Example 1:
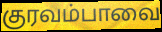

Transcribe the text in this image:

குரவம்பாவை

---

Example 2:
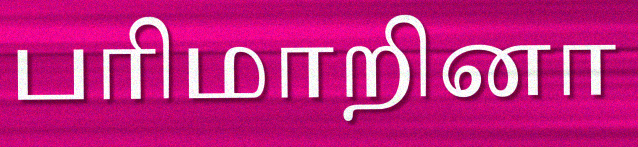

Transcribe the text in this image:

பரிமாறினா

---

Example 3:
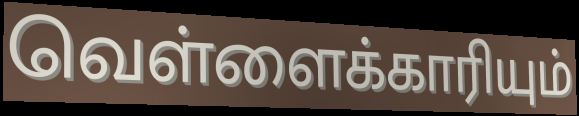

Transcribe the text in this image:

வெள்ளைக்காரியும்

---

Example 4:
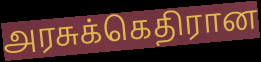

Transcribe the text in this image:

அரசுக்கெதிரான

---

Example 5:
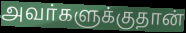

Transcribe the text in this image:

அவர்களுக்குதான்